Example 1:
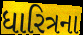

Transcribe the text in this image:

ધારિત્રના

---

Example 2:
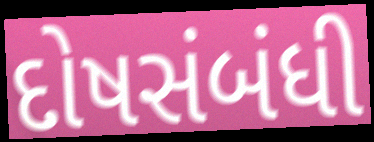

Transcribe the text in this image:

દોષસંબંધી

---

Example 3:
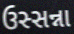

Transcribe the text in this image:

ઉસ્સન્ના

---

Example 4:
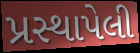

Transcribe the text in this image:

પ્રસ્થાપેલી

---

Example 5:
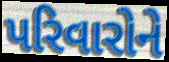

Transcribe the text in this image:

પરિવારોને